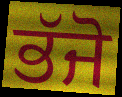
ਭੱਜੋ